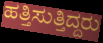
ಹತ್ತಿಸುತ್ತಿದ್ದರು